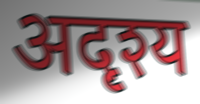
अदृश्य